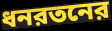
ধনরতনের